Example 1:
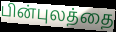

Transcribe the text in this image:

பின்புலத்தை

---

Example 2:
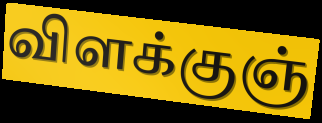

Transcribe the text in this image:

விளக்குஞ்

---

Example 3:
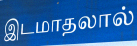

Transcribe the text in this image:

இடமாதலால்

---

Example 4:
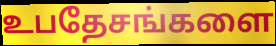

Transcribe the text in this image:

உபதேசங்களை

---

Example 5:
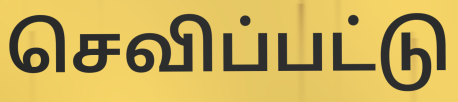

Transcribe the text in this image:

செவிப்பட்டு